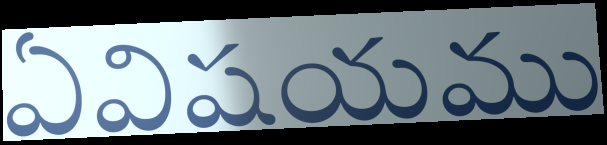
ఏవిషయము